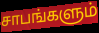
சாபங்களும்